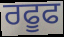
ਰਫੂਫ